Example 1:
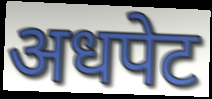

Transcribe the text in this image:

अधपेट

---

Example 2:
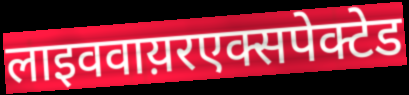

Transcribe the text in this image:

लाइववाय़रएक्सपेक्टेड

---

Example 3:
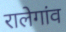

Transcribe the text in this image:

रालेगांव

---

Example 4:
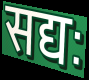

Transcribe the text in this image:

सद्यः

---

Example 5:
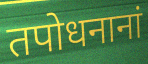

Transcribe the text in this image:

तपोधनानां